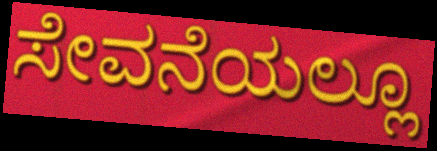
ಸೇವನೆಯಲ್ಲೂ